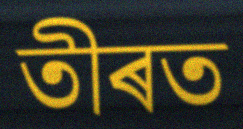
তীৰত